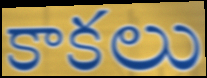
కాకలు